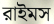
রাইমস